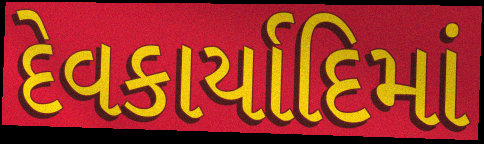
દેવકાર્યાદિમાં